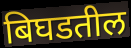
बिघडतील